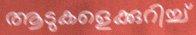
ആടുകളെക്കുറിച്ച്